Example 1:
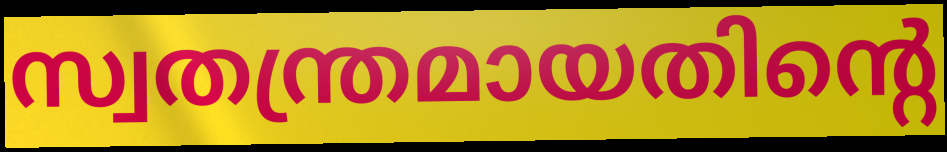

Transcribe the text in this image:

സ്വതന്ത്രമായതിന്റെ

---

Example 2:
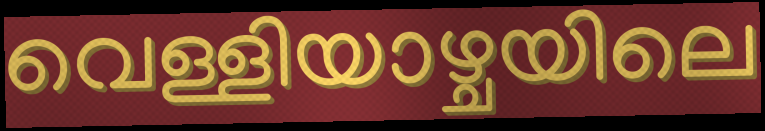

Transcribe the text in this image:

വെള്ളിയാഴ്ചയിലെ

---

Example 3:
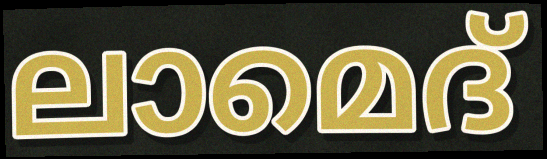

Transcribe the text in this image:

ലാമെദ്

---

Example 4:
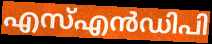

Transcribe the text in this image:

എസ്എൻഡിപി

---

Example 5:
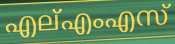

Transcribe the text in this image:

എല്എംഎസ്